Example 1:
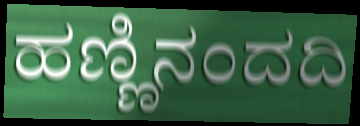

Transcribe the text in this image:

ಹಣ್ಣಿನಂದದಿ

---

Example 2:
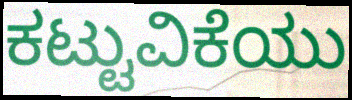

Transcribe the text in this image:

ಕಟ್ಟುವಿಕೆಯು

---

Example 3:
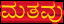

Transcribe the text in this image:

ಮತವು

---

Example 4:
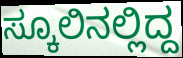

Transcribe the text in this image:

ಸ್ಕೂಲಿನಲ್ಲಿದ್ದ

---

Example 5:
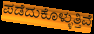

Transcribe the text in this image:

ಪಡೆದುಕೊಳ್ಳುತ್ತಿವೆ